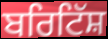
ਬਰਿਟਿੱਸ਼